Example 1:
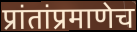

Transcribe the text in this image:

प्रांतांप्रमाणेच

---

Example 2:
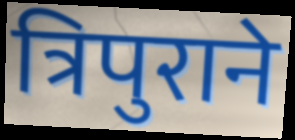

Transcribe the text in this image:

त्रिपुराने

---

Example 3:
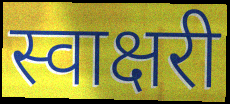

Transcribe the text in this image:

स्वाक्षरी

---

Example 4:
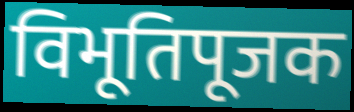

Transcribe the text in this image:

विभूतिपूजक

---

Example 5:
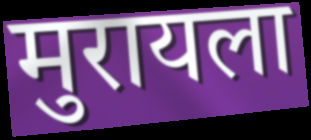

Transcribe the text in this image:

मुरायला